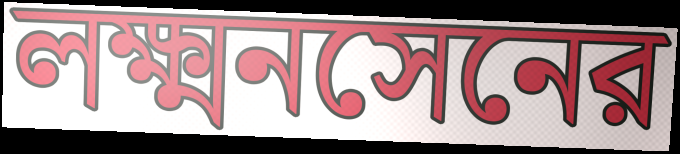
লক্ষ্মনসেনের